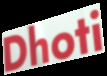
Dhoti